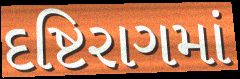
દષ્ટિરાગમાં